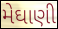
મેઘાણી